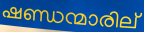
ഷണ്ഡന്മാരില്